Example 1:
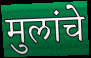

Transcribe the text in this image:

मुलांचे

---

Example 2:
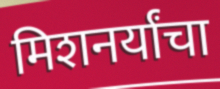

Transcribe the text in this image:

मिशनर्यांचा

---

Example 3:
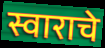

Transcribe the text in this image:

स्वाराचे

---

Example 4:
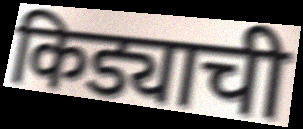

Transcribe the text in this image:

किड्याची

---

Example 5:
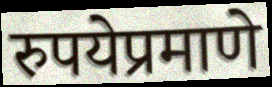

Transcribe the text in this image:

रुपयेप्रमाणे